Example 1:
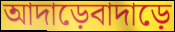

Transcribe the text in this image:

আদাড়েবাদাড়ে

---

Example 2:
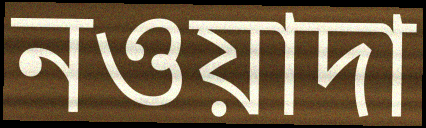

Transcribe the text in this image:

নওয়াদা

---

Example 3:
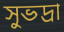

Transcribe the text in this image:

সুভদ্রা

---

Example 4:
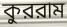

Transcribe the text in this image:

কুররাম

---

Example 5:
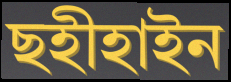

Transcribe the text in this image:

ছহীহাইন